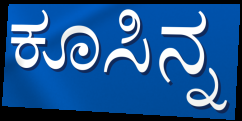
ಕೂಸಿನ್ನ